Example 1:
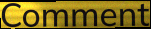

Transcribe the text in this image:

Comment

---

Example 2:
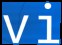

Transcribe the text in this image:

vi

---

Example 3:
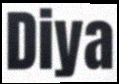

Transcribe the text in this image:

Diya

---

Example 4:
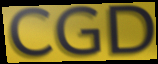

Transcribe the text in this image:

CGD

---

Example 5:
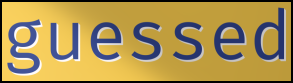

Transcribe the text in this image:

guessed